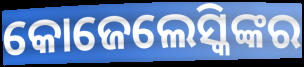
କୋଜେଲେସ୍କିଙ୍କର